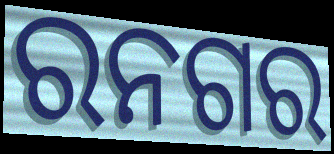
ରନଗର